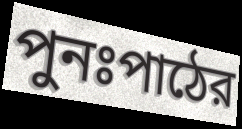
পুনঃপাঠের